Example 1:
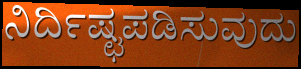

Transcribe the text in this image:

ನಿರ್ದಿಷ್ಟಪಡಿಸುವುದು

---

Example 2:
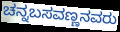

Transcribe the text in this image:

ಚನ್ನಬಸವಣ್ಣನವರು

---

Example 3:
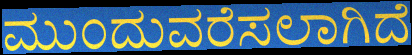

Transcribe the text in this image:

ಮುಂದುವರೆಸಲಾಗಿದೆ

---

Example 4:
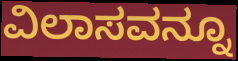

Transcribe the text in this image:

ವಿಲಾಸವನ್ನೂ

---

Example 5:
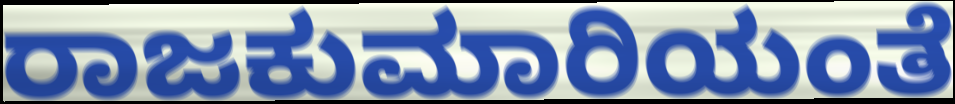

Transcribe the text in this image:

ರಾಜಕುಮಾರಿಯಂತೆ